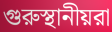
গুরুস্থানীয়রা